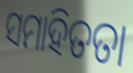
ସମାହିତତା